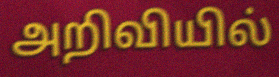
அறிவியில்